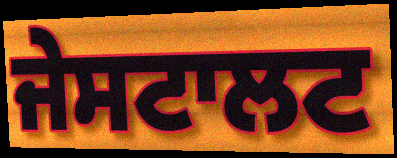
ਜੇਸਟਾਲਟ